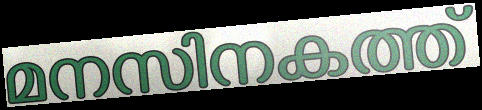
മനസിനകത്ത്